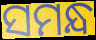
ସମନ୍ଧ